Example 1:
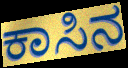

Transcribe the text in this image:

ಕಾಸಿನ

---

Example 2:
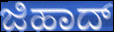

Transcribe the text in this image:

ಜಿಹಾದ್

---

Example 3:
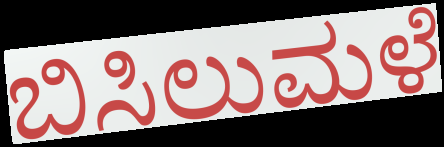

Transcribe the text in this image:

ಬಿಸಿಲುಮಳೆ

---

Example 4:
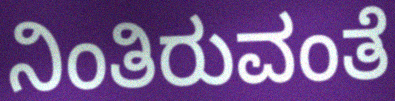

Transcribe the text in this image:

ನಿಂತಿರುವಂತೆ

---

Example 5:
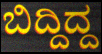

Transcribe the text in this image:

ಬಿದ್ದಿದ್ದ